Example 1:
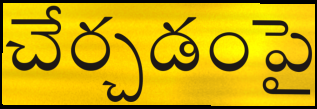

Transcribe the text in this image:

చేర్చడంపై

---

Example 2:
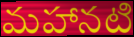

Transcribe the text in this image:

మహానటి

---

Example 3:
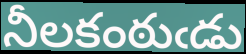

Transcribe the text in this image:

నీలకంఠుఁడు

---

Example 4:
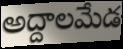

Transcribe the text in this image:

అద్దాలమేడ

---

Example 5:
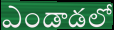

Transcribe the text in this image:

ఎండాడలో